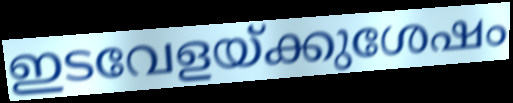
ഇടവേളയ്ക്കുശേഷം